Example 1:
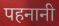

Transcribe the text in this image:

पहनानी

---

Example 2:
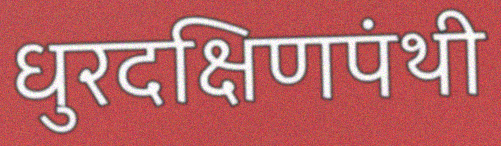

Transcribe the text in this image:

धुरदक्षिणपंथी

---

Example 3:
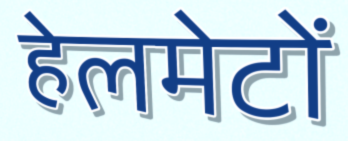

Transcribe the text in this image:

हेलमेटों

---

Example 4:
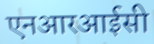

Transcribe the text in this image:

एनआरआईसी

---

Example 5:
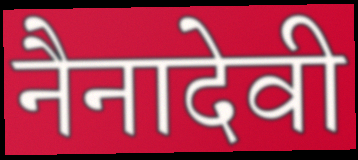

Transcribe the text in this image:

नैनादेवी